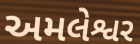
અમલેશ્વર